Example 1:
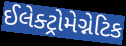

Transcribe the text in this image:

ઈલેક્ટ્રોમેગ્નેટિક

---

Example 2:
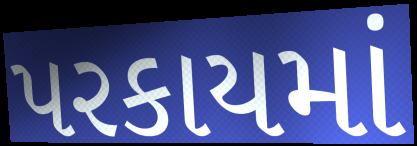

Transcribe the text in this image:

પરકાયમાં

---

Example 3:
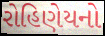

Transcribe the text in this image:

રોહિણેયનો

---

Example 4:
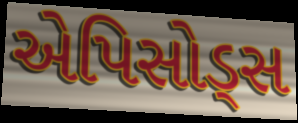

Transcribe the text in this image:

એપિસોડ્સ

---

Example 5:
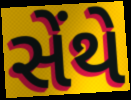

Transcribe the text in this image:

સેંથે